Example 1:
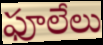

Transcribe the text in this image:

ఫూలేలు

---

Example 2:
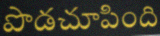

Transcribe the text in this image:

పొడచూపింది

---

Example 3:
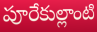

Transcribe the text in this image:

పూరేకుల్లాంటి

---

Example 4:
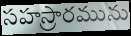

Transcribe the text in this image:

సహస్రారమును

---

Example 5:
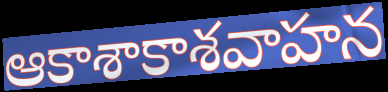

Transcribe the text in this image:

ఆకాశాకాశవాహన